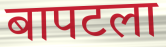
बापटला